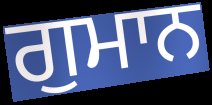
ਗੁਮਾਨ